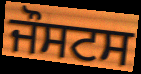
ਜੌਸਟਸ